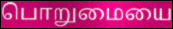
பொறுமையை